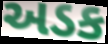
અડક